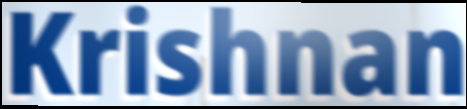
Krishnan